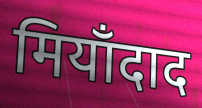
मियाँदाद